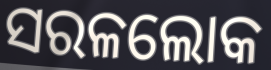
ସରଳଲୋକ